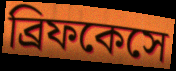
ব্রিফকেসে